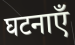
घटनाएँ